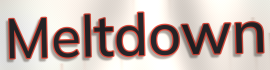
Meltdown